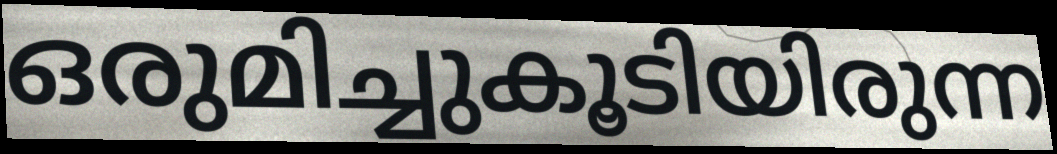
ഒരുമിച്ചുകൂടിയിരുന്ന